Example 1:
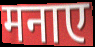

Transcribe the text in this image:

मनाए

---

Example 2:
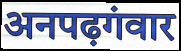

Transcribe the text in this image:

अनपढ़गंवार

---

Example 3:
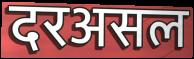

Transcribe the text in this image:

दरअसल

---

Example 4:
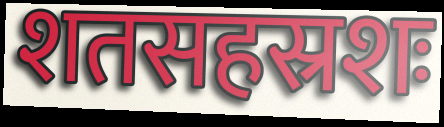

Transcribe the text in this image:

शतसहस्रशः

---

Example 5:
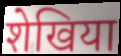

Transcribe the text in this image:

शेखिया